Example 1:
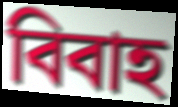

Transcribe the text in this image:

বিবাহ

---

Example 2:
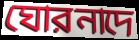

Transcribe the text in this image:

ঘোরনাদে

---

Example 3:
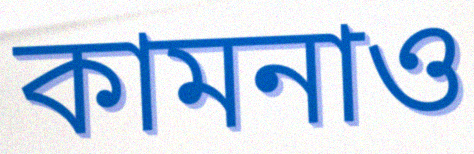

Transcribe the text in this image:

কামনাও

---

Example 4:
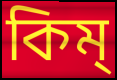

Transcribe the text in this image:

কিম্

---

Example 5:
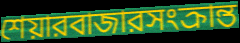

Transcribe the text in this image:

শেয়ারবাজারসংক্রান্ত